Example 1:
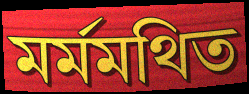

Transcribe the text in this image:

মর্মমথিত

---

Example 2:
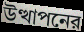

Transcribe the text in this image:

উত্থাপনের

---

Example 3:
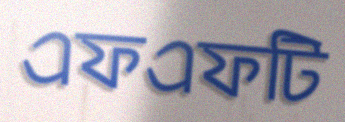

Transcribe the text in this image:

এফএফটি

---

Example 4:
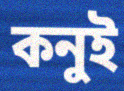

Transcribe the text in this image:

কনুই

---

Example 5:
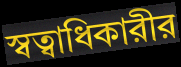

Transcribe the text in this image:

স্বত্বাধিকারীর